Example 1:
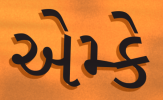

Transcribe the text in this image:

એમ્કે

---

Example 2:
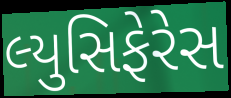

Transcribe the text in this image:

લ્યુસિફેરેસ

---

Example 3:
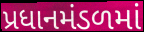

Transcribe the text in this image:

પ્રધાનમંડળમાં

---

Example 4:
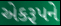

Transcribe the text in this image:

એકરૂપને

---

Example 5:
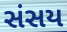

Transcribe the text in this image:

સંસય